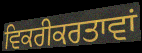
ਵਿਕਰੀਕਰਤਾਵਾਂ